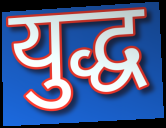
युद्ध